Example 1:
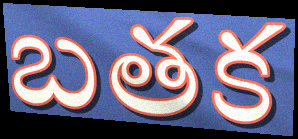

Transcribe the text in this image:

బతక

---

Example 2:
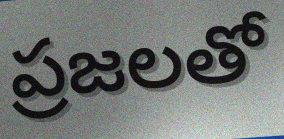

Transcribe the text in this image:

ప్రజలతో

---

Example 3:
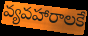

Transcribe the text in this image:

వ్యవహారాలకే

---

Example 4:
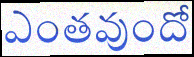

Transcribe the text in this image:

ఎంతవుందో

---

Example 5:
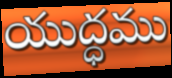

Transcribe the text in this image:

యుద్ధము